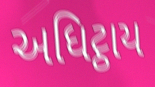
અધિટ્ઠાય